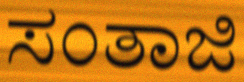
ಸಂತಾಜಿ